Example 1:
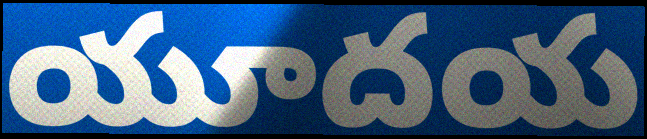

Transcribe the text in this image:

యూదయ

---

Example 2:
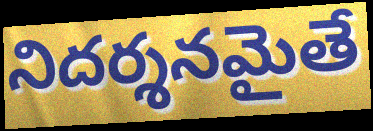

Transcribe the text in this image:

నిదర్శనమైతే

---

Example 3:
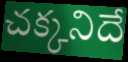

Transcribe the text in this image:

చక్కనిదే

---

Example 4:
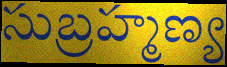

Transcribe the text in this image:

సుబ్రహ్మణ్య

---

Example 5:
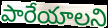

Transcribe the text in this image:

పారేయాలని